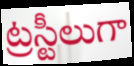
ట్రస్టీలుగా